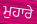
ਮੁਹਾਰੇ